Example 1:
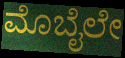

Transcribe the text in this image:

ಮೊಬೈಲೇ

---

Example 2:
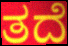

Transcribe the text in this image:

ತದೆ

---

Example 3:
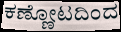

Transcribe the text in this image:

ಕಣ್ಣೋಟದಿಂದ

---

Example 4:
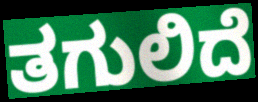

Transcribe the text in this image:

ತಗುಲಿದೆ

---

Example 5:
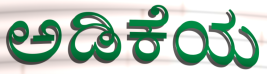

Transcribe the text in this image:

ಅಡಿಕೆಯ